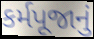
કર્મપૂજાનું